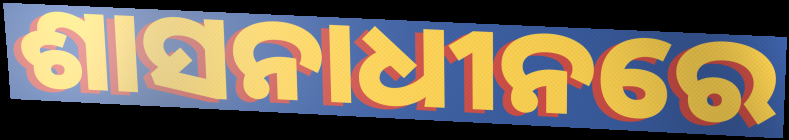
ଶାସନାଧୀନରେ